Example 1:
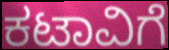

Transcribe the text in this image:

ಕಟಾವಿಗೆ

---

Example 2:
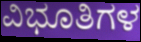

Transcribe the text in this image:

ವಿಭೂತಿಗಳ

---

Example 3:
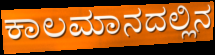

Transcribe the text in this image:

ಕಾಲಮಾನದಲ್ಲಿನ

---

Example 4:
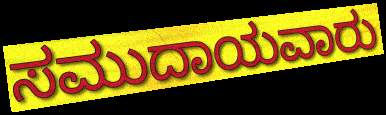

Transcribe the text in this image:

ಸಮುದಾಯವಾರು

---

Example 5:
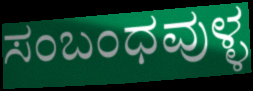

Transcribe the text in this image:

ಸಂಬಂಧವುಳ್ಳ